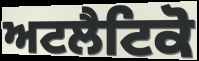
ਅਟਲੈਟਿਕੋ